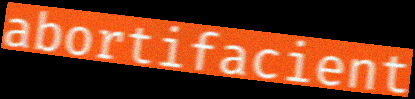
abortifacient